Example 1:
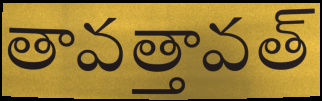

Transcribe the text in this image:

తావత్తావత్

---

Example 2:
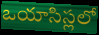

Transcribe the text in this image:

ఒయాసిస్లలో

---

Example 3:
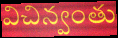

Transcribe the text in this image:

విచిన్వంతు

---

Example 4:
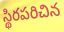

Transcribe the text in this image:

స్థిరపరిచిన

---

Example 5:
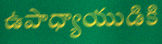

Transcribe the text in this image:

ఉపాధ్యాయుడికి